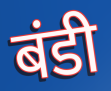
बंडी